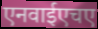
एनवाईएचए